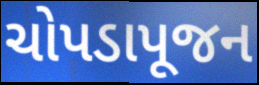
ચોપડાપૂજન